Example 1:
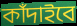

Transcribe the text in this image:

কাঁদাইবে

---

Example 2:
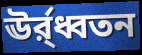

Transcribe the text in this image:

ঊর্র্ধ্বতন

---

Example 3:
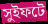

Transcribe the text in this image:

সুইফটে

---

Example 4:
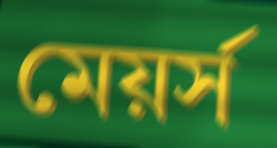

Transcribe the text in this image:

মেয়র্স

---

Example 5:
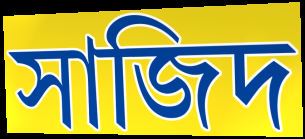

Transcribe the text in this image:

সাজিদ